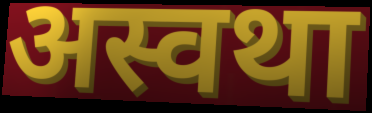
अस्वथा